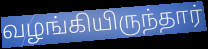
வழங்கியிருந்தார்